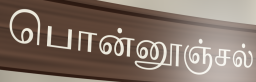
பொன்னூஞ்சல்